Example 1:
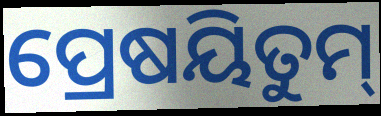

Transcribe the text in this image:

ପ୍ରେଷୟିତୁମ୍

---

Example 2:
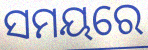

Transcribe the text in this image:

ସମୟରେ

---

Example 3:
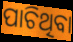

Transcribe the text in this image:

ପାଚିଥିବା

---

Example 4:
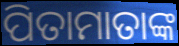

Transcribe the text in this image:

ପିତାମାତାଙ୍କ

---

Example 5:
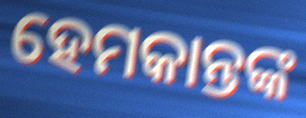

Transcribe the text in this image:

ହେମକାନ୍ତଙ୍କ